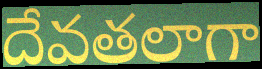
దేవతలాగా